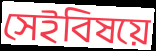
সেইবিষয়ে